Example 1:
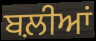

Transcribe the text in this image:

ਬਲ਼ੀਆਂ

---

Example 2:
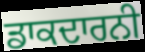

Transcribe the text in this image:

ਡਾਕਦਾਰਨੀ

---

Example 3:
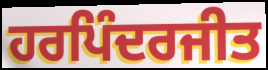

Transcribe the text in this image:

ਹਰਪਿੰਦਰਜੀਤ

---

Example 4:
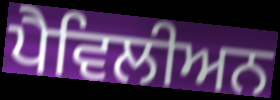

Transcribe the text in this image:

ਪੈਵਿਲੀਅਨ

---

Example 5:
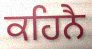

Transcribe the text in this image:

ਕਹਿਨੈ